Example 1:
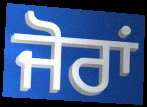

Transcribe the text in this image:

ਜੋਰਾਂ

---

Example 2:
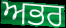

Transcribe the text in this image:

ਅਭਰ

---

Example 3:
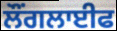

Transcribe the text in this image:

ਲੌਂਗਲਾਈਫ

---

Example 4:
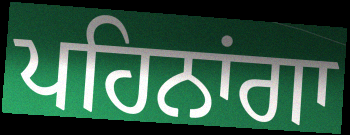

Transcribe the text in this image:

ਪਹਿਨਾਂਗਾ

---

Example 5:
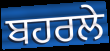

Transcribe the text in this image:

ਬਹਰਲੇ